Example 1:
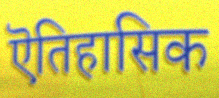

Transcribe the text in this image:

ऎतिहासिक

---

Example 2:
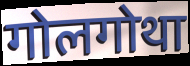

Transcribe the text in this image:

गोलगोथा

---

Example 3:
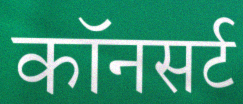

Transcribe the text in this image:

कॉनसर्ट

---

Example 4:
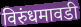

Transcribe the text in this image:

विरुंधमावडी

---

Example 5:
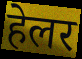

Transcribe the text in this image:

हेलर